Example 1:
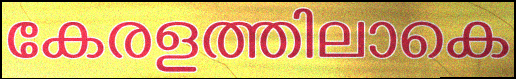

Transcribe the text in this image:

കേരളത്തിലാകെ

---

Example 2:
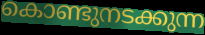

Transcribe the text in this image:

കൊണ്ടുനടക്കുന്ന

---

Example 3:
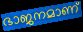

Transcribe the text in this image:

ഭാജനമാണ്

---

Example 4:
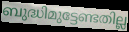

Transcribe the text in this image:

ബുദ്ധിമുട്ടേണ്ടതില്ല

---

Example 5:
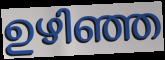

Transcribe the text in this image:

ഉഴിഞ്ഞ